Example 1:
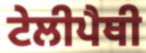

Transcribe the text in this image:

ਟੇਲੀਪੈਥੀ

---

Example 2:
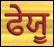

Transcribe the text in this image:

ਫੇਯੂ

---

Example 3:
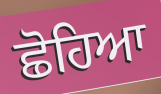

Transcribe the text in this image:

ਛੋਹਿਆ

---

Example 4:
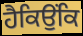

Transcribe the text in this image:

ਹੈਕਿਉਂਕਿ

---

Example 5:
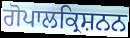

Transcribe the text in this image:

ਗੋਪਾਲਕ੍ਰਿਸ਼ਨਨ